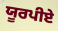
ਯੂਰਪੀਏ